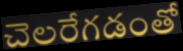
చెలరేగడంతో